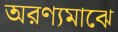
অরণ্যমাঝে